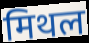
मिथल